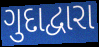
ગુદાદ્વારા